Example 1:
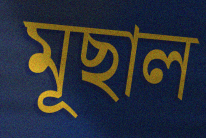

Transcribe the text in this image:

মূছাল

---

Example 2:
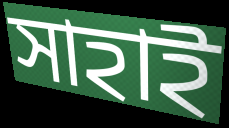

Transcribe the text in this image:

সাহাই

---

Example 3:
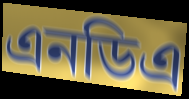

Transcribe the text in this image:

এনডিএ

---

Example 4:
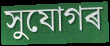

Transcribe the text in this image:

সুযোগৰ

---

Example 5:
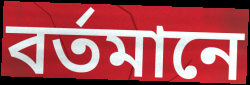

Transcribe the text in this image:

বৰ্তমানে